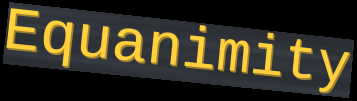
Equanimity